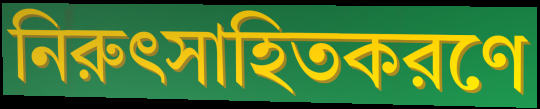
নিরুৎসাহিতকরণে